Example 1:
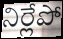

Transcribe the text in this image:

నిర్లేపో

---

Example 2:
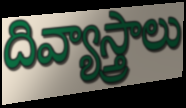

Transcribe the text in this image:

దివ్యాస్త్రాలు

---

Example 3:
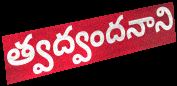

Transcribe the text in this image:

త్వద్వందనాని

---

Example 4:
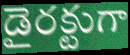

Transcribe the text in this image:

డైరక్టుగా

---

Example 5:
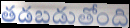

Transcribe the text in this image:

తడబడుతోంది